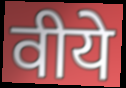
वीये